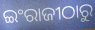
ଇଂରାଜୀଠାରୁ